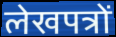
लेखपत्रों